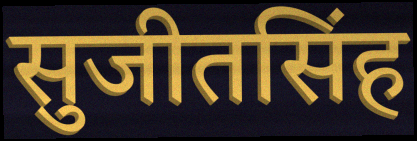
सुजीतसिंह